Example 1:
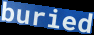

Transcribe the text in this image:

buried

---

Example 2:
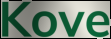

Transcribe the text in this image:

Kove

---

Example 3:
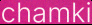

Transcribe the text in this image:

chamki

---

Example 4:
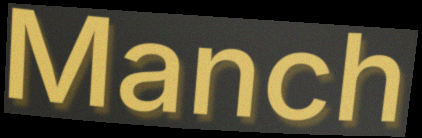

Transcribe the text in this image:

Manch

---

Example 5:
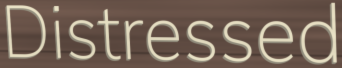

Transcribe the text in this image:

Distressed